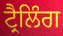
ਟ੍ਰੈਲਿੰਗ